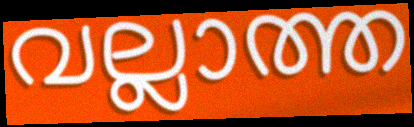
വല്ലാത്ത